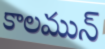
కాలమున్